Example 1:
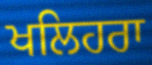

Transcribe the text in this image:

ਖਲਿਹਰਾ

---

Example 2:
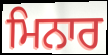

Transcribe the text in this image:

ਮਿਨਾਰ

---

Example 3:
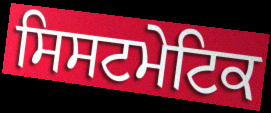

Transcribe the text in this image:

ਸਿਸਟਮੇਟਿਕ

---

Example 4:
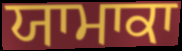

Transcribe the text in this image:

ਯਾਮਾਕਾ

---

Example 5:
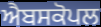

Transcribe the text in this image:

ਐਬਸਕੋਪਲ